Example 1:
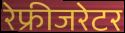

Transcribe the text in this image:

रेफ्रीजरेटर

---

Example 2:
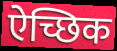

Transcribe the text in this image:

ऐच्छिक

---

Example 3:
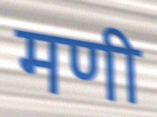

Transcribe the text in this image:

मणी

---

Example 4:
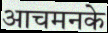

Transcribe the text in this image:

आचमनके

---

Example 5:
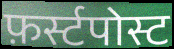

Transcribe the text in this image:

फ़र्स्टपोस्ट